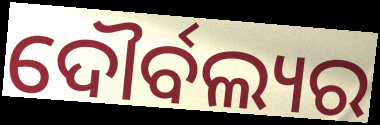
ଦୌର୍ବଲ୍ୟର